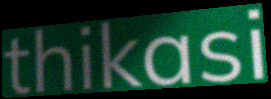
thikasi